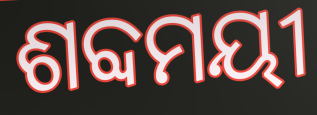
ଶବ୍ଦମୟୀ